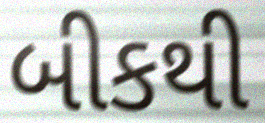
બીકથી